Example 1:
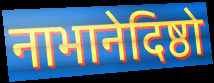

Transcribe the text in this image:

नाभानेदिष्ठो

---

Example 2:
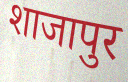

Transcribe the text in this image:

शाजापुर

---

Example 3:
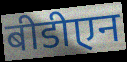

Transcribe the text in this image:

बीडीएन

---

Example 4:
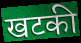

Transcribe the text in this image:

खटकी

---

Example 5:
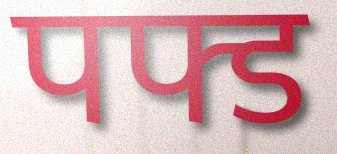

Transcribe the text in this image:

पफ्ड